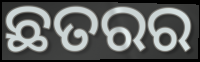
ଛତରର